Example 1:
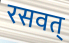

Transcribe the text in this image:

रसवत्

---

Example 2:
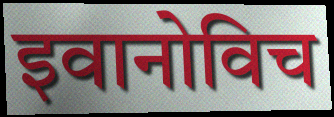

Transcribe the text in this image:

इवानोविच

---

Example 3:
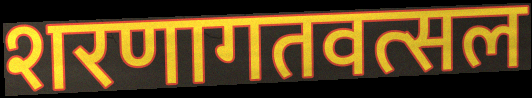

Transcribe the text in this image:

शरणागतवत्सल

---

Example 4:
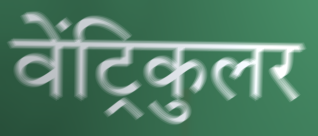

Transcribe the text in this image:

वेंट्रिकुलर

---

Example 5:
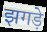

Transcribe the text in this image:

झगड़े